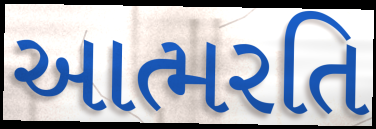
આત્મરતિ